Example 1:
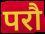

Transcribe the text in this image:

परौ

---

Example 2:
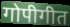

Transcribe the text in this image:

गोपीगीत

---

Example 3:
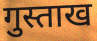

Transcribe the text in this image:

गुस्ताख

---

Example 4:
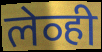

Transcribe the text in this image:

लेव्ही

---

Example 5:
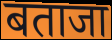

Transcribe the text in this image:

बताजा